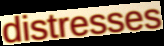
distresses